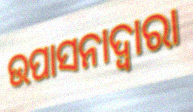
ଉପାସନାଦ୍ଵାରା